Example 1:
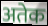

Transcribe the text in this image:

अतेक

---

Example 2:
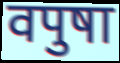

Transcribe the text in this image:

वपुषा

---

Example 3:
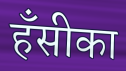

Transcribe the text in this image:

हँसीका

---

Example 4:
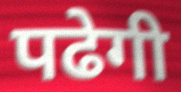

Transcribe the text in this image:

पढेगी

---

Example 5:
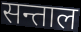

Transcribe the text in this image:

सन्ताल